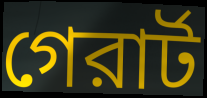
গেরার্ট